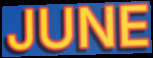
JUNE